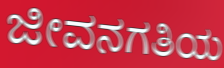
ಜೀವನಗತಿಯ